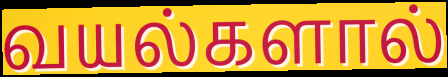
வயல்களால்